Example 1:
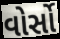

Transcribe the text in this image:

વોર્સો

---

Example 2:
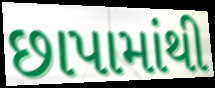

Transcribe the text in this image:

છાપામાંથી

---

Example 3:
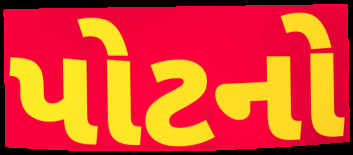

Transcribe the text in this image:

પોટનો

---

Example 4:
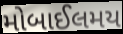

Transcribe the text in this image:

મોબાઈલમય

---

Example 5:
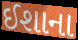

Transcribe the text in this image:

ઈશાના